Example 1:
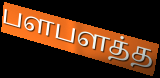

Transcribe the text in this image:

பளபளத்த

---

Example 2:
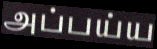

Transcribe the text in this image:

அப்பய்ய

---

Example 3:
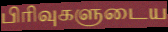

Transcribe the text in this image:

பிரிவுகளுடைய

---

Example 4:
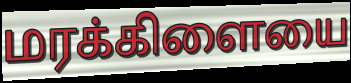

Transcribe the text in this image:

மரக்கிளையை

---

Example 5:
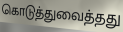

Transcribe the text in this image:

கொடுத்துவைத்தது